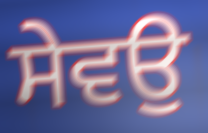
ਸੇਵਉ